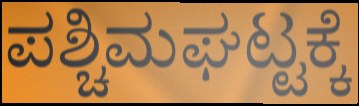
ಪಶ್ಚಿಮಘಟ್ಟಕ್ಕೆ